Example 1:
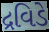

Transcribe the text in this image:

દ્રવિડે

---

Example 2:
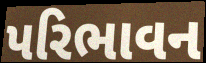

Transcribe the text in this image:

પરિભાવન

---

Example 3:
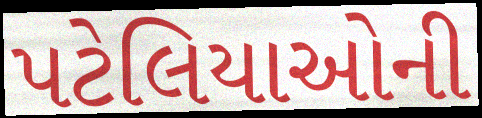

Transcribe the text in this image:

પટેલિયાઓની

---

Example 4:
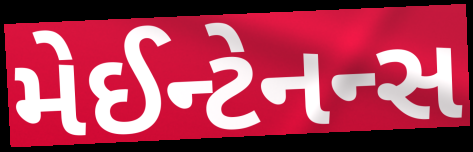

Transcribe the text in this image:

મેઈન્ટેનન્સ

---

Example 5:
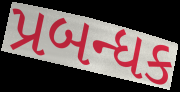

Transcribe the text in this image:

પ્રબન્ધક